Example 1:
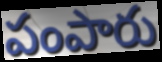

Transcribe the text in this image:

పంపారు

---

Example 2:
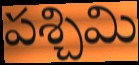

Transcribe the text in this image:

పశ్చిమి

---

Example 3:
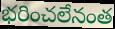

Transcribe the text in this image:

భరించలేనంత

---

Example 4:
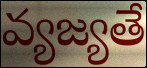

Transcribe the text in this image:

వ్యజ్యతే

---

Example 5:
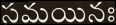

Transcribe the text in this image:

సమయినః